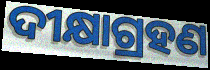
ଦୀକ୍ଷାଗ୍ରହଣ